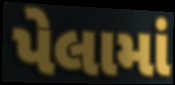
પેલામાં